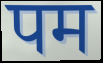
पम